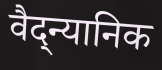
वैद्न्यानिक